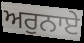
ਅਰੁਨਾਏ